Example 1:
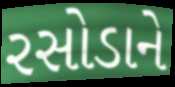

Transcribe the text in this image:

રસોડાને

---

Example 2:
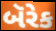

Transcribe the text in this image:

બૅરેક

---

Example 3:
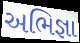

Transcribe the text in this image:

અભિજ્ઞા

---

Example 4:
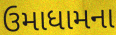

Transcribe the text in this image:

ઉમાધામના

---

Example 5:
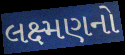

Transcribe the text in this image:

લક્ષ્મણનો